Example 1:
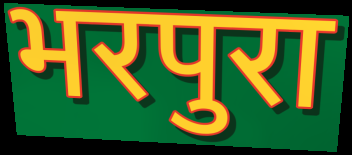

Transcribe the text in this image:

भरपुरा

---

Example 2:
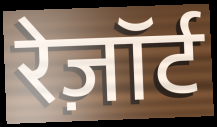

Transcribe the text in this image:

रेज़ॉर्ट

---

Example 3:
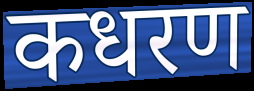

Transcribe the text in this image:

कधरण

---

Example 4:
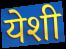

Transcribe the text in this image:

येशी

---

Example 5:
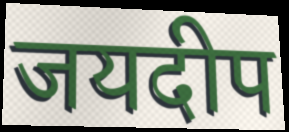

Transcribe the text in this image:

जयदीप